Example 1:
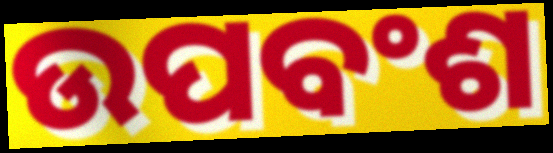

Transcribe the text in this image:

ଉପବଂଶ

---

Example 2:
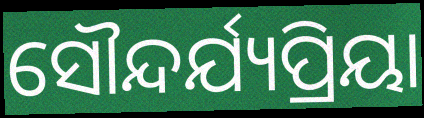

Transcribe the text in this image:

ସୌନ୍ଦର୍ଯ୍ୟପ୍ରିୟା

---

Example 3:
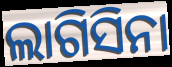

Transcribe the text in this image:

ଲାଗିସିନା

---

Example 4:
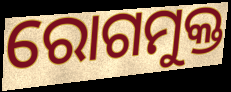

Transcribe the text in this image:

ରୋଗମୁକ୍ତ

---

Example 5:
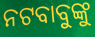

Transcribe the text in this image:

ନଟବାବୁଙ୍କୁ